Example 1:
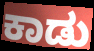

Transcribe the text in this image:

ಕಾಡು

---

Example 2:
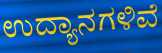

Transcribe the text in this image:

ಉದ್ಯಾನಗಳಿವೆ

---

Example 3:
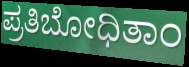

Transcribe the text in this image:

ಪ್ರತಿಬೋಧಿತಾಂ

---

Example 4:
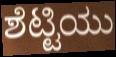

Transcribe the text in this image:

ಶೆಟ್ಟಿಯು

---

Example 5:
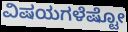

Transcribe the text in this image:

ವಿಷಯಗಳೆಷ್ಟೋ